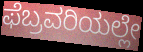
ಫೆಬ್ರವರಿಯಲ್ಲೇ